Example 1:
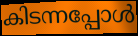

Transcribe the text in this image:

കിടന്നപ്പോൾ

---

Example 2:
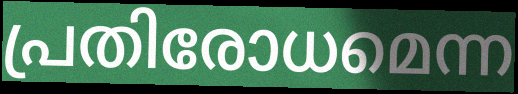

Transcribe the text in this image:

പ്രതിരോധമെന്ന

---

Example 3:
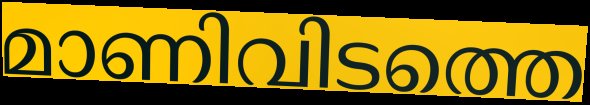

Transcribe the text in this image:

മാണിവിടത്തെ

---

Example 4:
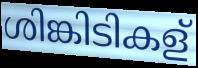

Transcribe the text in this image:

ശിങ്കിടികള്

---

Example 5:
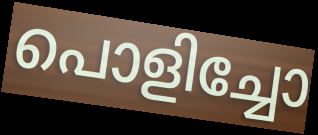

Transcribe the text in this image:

പൊളിച്ചോ